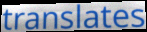
translates